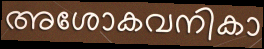
അശോകവനികാ